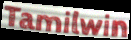
Tamilwin